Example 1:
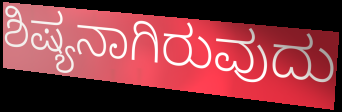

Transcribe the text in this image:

ಶಿಷ್ಯನಾಗಿರುವುದು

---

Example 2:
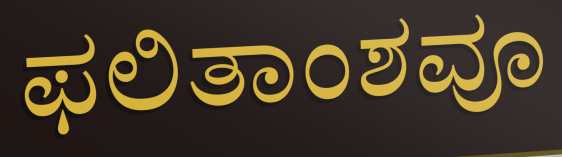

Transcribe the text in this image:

ಫಲಿತಾಂಶವೂ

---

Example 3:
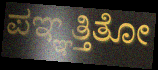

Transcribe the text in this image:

ಪಞ್ಞತ್ತಿತೋ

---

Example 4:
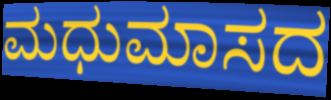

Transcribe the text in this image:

ಮಧುಮಾಸದ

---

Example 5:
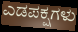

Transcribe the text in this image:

ಎಡಪಕ್ಷಗಳು